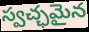
స్వచ్ఛమైన